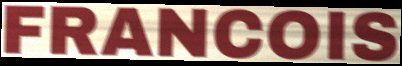
FRANCOIS